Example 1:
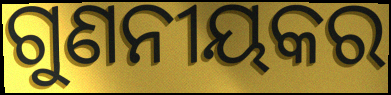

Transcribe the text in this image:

ଗୁଣନୀୟକର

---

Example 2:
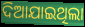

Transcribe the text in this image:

ଦିଆଯାଇଥିଲା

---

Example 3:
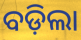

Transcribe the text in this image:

ବଡ଼ିଲା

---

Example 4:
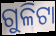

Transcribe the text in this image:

ଗୁଳିଟା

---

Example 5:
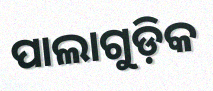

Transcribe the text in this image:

ପାଲାଗୁଡ଼ିକ